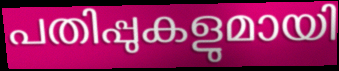
പതിപ്പുകളുമായി